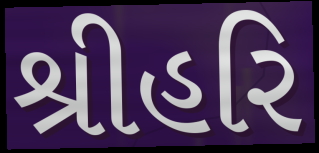
શ્રીહરિ